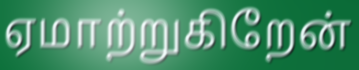
ஏமாற்றுகிறேன்